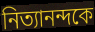
নিত্যানন্দকে